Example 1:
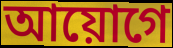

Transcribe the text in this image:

আয়োগে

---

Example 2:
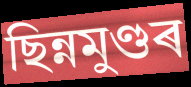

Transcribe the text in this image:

ছিন্নমুণ্ডৰ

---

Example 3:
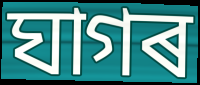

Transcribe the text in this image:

ঘাগৰ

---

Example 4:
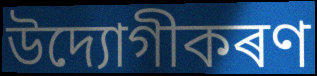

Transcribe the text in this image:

উদ্যোগীকৰণ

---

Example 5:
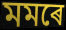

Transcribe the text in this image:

মমৰে